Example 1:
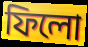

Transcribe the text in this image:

ফিলো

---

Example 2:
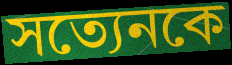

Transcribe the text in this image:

সত্যেনকে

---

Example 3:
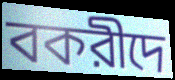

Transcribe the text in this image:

বকরীদে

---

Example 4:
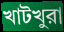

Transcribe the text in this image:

খাটখুরা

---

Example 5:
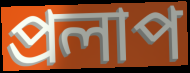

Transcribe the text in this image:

প্রলাপ